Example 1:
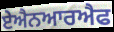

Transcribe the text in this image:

ਏਐਨਆਰਐਫ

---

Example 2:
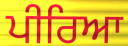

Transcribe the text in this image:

ਪੀਰਿਆ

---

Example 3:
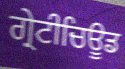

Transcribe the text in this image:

ਗ੍ਰੇਟੀਚਿਊਡ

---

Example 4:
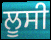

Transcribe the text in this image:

ਲੂਸੀ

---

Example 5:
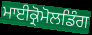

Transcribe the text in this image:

ਮਾਈਕ੍ਰੋਮੋਲਡਿੰਗ